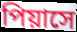
পিয়াসে